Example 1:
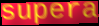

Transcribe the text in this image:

supera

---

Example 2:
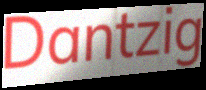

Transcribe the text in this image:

Dantzig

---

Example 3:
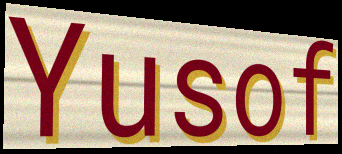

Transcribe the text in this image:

Yusof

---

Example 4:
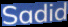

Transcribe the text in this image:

Sadid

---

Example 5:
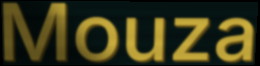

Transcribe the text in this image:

Mouza